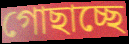
গোছাচ্ছে